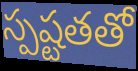
స్పష్టతతో